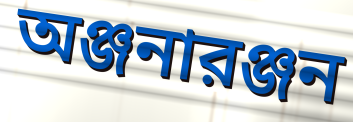
অঞ্জনারঞ্জন